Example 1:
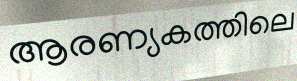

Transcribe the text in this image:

ആരണ്യകത്തിലെ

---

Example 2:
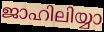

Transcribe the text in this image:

ജാഹിലിയ്യാ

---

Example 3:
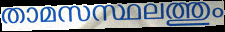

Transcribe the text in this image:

താമസസ്ഥലത്തും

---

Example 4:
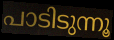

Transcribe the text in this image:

പാടിടുന്നൂ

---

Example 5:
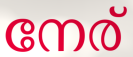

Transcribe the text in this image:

നേര്